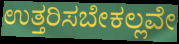
ಉತ್ತರಿಸಬೇಕಲ್ಲವೇ